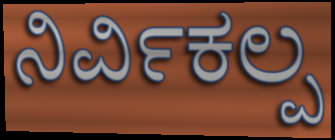
ನಿರ್ವಿಕಲ್ಪ